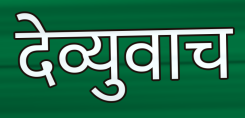
देव्युवाच